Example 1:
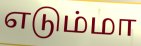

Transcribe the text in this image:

எடும்மா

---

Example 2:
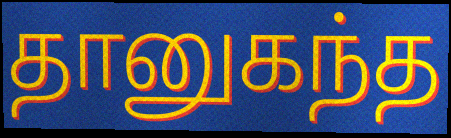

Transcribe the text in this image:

தானுகந்த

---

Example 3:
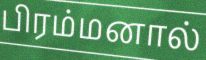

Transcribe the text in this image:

பிரம்மனால்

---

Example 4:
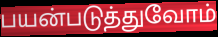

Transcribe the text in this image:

பயன்படுத்துவோம்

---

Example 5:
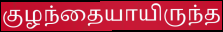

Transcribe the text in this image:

குழந்தையாயிருந்த